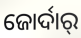
ଜୋର୍ଦାର୍